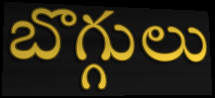
బొగ్గులు